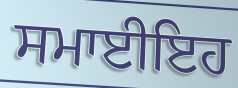
ਸਮਾਈਇਹ